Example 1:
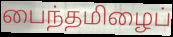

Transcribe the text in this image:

பைந்தமிழைப்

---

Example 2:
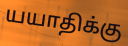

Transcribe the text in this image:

யயாதிக்கு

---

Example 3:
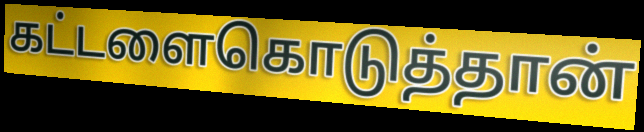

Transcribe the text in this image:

கட்டளைகொடுத்தான்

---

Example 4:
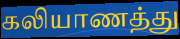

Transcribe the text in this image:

கலியாணத்து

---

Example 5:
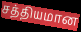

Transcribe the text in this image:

சத்தியமான